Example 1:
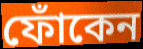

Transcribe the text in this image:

ফোঁকেন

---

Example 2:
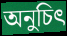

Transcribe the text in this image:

অনুচিৎ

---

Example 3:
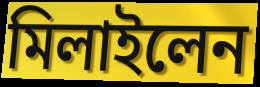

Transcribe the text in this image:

মিলাইলেন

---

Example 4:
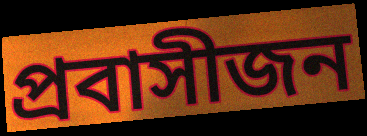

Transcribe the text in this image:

প্রবাসীজন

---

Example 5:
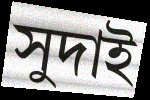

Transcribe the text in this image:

সুদাই